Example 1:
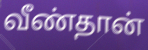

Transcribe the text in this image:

வீண்தான்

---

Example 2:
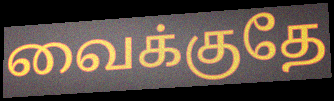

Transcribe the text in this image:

வைக்குதே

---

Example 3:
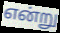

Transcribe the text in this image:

என்று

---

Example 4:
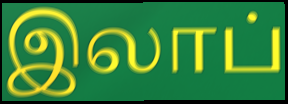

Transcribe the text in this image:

இலாப்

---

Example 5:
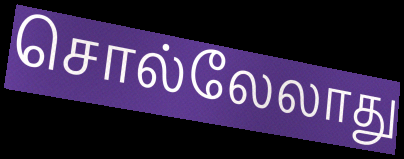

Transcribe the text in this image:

சொல்லேலாது